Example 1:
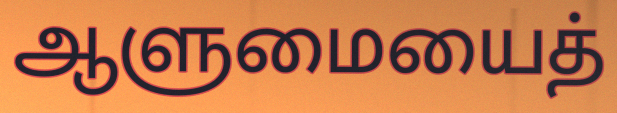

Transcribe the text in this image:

ஆளுமையைத்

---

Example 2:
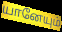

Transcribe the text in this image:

யானேயும்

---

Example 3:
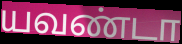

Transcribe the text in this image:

யவண்டா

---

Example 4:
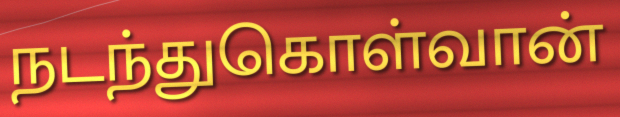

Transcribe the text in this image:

நடந்துகொள்வான்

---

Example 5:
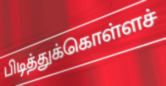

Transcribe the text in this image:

பிடித்துக்கொள்ளச்